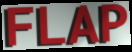
FLAP